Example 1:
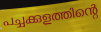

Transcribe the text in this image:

പച്ചക്കുളത്തിന്റെ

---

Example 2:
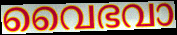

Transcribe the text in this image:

വൈഭവാ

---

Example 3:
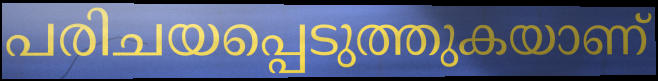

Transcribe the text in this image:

പരിചയപ്പെടുത്തുകയാണ്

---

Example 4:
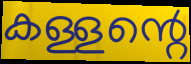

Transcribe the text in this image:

കള്ളന്റെ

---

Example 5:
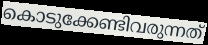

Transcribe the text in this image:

കൊടുക്കേണ്ടിവരുന്നത്